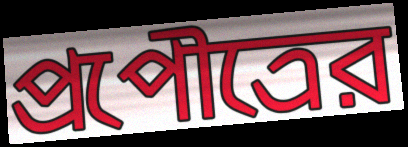
প্রপৌত্রের